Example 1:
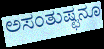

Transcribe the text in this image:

ಅಸಂತುಷ್ಟನೂ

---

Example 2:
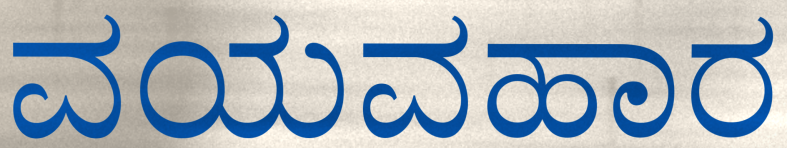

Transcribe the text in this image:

ವಯವಹಾರ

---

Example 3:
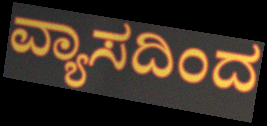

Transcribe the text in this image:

ವ್ಯಾಸದಿಂದ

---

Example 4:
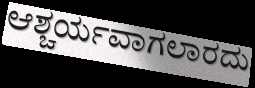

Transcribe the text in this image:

ಆಶ್ಚರ್ಯವಾಗಲಾರದು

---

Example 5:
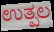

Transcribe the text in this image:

ಉತ್ಪಲ